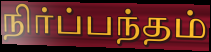
நிர்ப்பந்தம்